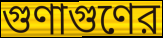
গুণাগুণের